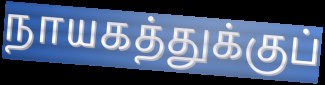
நாயகத்துக்குப்